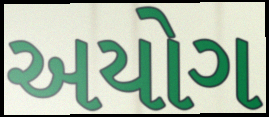
અયોગ